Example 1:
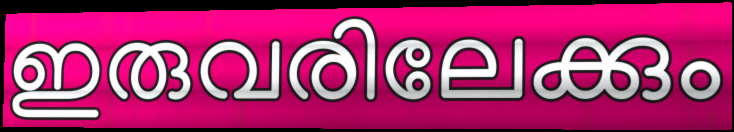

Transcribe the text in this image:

ഇരുവരിലേക്കും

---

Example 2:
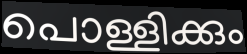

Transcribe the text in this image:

പൊള്ളിക്കും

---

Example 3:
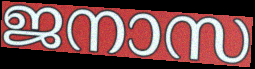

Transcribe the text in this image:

ജനാസ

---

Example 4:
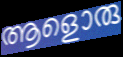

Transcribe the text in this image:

ആളൊരു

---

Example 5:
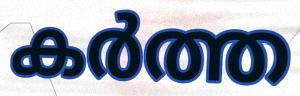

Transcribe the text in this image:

കർത്ത